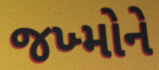
જખ્મોને